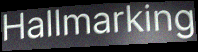
Hallmarking